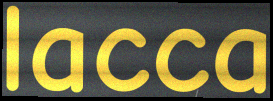
lacca